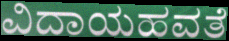
ವಿದಾಯಹವತೆ